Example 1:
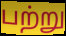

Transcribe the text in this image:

பற்று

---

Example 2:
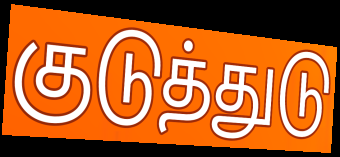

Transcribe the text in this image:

குடுத்துடு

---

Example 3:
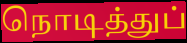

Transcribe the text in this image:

நொடித்துப்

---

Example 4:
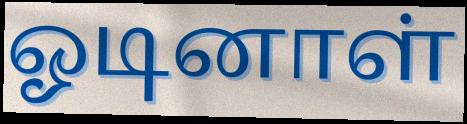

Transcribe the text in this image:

ஓடினாள்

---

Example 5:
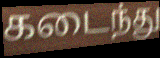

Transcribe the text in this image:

கடைந்து